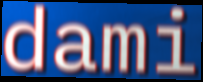
dami